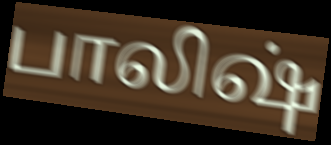
பாலிஷ்